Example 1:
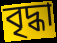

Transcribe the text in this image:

বৃদ্ধা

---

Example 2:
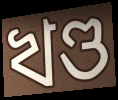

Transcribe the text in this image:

খণ্ড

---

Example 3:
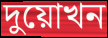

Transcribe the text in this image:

দুয়োখন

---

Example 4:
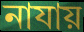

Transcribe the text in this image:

নাযায়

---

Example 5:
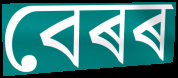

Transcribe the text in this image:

বেৰৰ